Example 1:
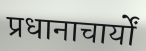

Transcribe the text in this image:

प्रधानाचार्यों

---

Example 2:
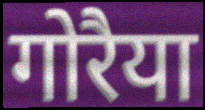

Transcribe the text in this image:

गोरैया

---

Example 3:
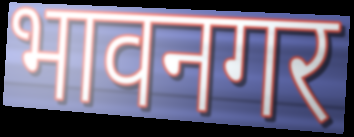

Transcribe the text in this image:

भावनगर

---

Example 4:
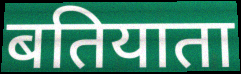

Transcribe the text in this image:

बतियाता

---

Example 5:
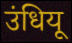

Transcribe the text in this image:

उंधियू